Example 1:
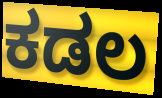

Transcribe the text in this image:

ಕಡಲ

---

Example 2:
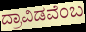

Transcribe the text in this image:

ದ್ರಾವಿಡವೆಂಬ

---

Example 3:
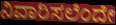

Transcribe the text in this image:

ನಿವಾರಿಸಲೆಂದೇ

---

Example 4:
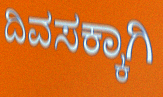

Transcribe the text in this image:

ದಿವಸಕ್ಕಾಗಿ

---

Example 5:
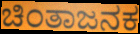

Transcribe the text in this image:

ಚಿಂತಾಜನಕ